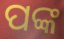
ପଙ୍କ